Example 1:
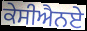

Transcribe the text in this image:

ਕੇਸੀਐਨਏ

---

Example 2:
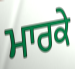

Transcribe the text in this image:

ਮਾਰਕੇ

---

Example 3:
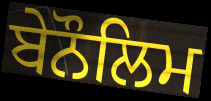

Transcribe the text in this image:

ਬੇਨੌਲਿਮ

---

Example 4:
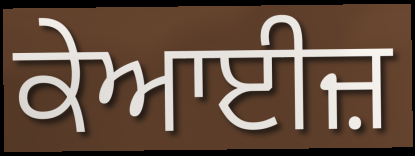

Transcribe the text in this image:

ਕੇਆਈਜ਼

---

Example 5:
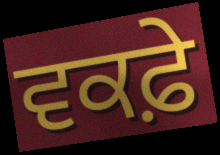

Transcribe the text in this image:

ਵਕਫ਼ੇ